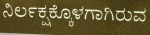
ನಿರ್ಲಕ್ಷಕ್ಕೊಳಗಾಗಿರುವ